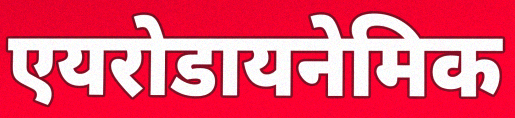
एयरोडायनेमिक